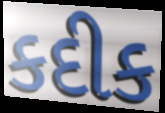
કદીક